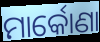
ମାର୍କୋଣା